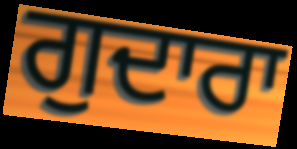
ਗੁਦਾਰਾ